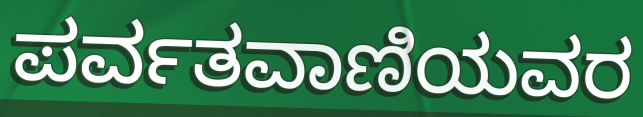
ಪರ್ವತವಾಣಿಯವರ